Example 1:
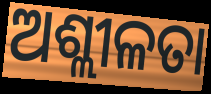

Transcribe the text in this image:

ଅଶ୍ଲୀଳତା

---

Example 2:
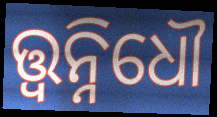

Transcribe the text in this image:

ତ୍ତ୍ଵନ୍ନିଧୌ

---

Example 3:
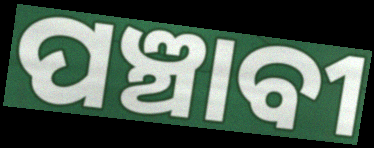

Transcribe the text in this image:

ପଞ୍ଚାବୀ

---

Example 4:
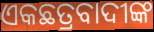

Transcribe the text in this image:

ଏକଛତ୍ରବାଦୀଙ୍କ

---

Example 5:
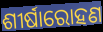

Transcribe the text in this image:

ଶୀର୍ଷାରୋହଣ